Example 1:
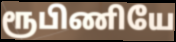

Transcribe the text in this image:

ரூபிணியே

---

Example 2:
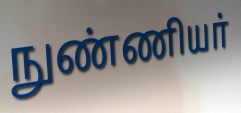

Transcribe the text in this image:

நுண்ணியர்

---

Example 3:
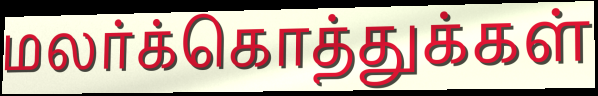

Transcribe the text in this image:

மலர்க்கொத்துக்கள்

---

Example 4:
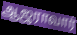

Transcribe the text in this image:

ஆஜராவார்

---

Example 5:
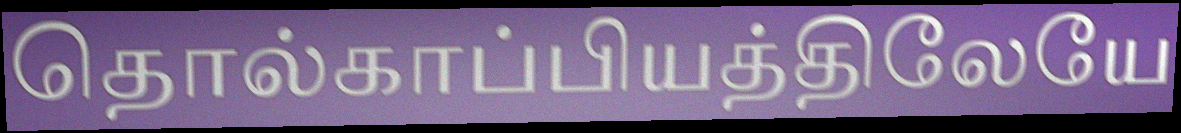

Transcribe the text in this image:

தொல்காப்பியத்திலேயே